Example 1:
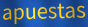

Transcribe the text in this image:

apuestas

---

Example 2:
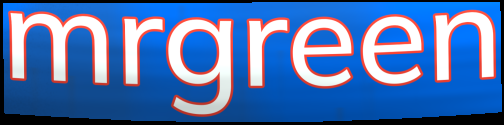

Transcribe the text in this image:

mrgreen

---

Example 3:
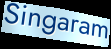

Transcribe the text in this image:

Singaram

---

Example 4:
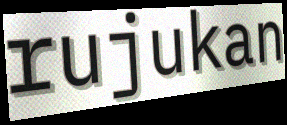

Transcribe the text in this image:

rujukan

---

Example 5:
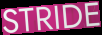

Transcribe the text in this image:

STRIDE